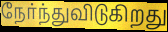
நேர்ந்துவிடுகிறது